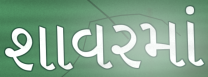
શાવરમાં